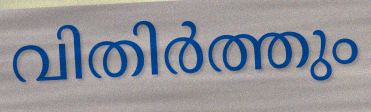
വിതിർത്തും